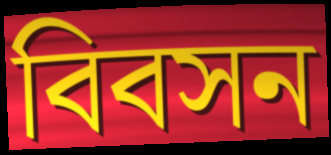
বিবসন